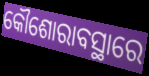
କୌଶୋରାବସ୍ଥାରେ